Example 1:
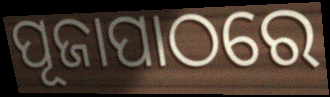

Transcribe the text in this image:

ପୂଜାପାଠରେ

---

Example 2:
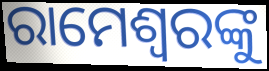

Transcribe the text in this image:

ରାମେଶ୍ୱରଙ୍କୁ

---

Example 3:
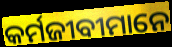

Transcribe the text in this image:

କର୍ମଜୀବୀମାନେ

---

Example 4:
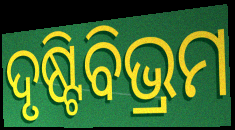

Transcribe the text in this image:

ଦୃଷ୍ଟିବିଭ୍ରମ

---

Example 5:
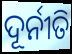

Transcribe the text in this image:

ଦୂର୍ନୀତି